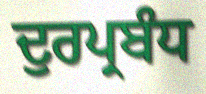
ਦੁਰਪ੍ਰਬੰਧ